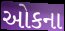
ઓકના